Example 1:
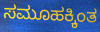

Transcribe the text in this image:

ಸಮೂಹಕ್ಕಿಂತ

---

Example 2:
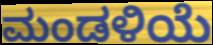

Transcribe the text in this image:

ಮಂಡಳಿಯೆ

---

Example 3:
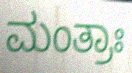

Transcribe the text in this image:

ಮಂತ್ರಾಃ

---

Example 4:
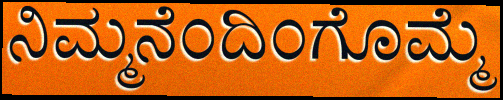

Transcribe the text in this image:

ನಿಮ್ಮನೆಂದಿಂಗೊಮ್ಮೆ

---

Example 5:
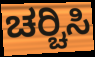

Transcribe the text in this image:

ಚರ‍್ಚಿಸಿ